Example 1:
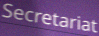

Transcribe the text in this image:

Secretariat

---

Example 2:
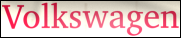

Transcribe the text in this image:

Volkswagen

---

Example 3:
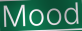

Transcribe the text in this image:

Mood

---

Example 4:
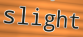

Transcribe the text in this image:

slight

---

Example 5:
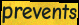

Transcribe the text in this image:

prevents